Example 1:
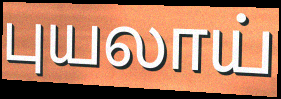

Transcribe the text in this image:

புயலாய்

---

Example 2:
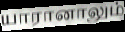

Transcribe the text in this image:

யாரானாலும்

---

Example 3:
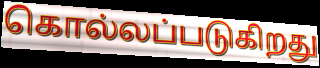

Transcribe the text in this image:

கொல்லப்படுகிறது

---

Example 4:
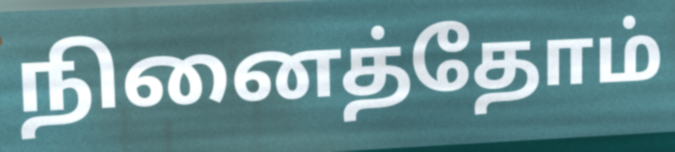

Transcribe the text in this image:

நினைத்தோம்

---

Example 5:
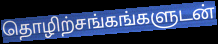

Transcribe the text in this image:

தொழிற்சங்கங்களுடன்